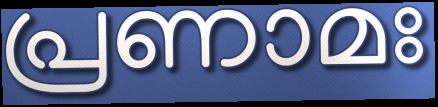
പ്രണാമഃ